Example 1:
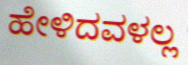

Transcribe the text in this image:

ಹೇಳಿದವಳಲ್ಲ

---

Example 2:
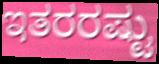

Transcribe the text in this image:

ಇತರರಷ್ಟು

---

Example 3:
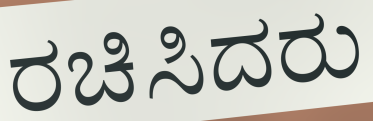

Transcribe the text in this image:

ರಚಿಸಿದರು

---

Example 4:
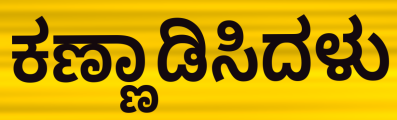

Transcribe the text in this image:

ಕಣ್ಣಾಡಿಸಿದಳು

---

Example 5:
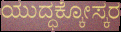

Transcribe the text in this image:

ಯುದ್ಧಕ್ಕೋಸ್ಕರ